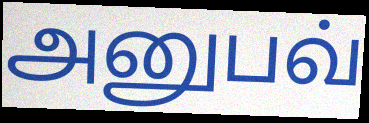
அனுபவ்